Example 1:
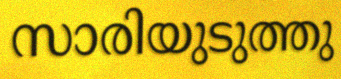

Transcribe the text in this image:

സാരിയുടുത്തു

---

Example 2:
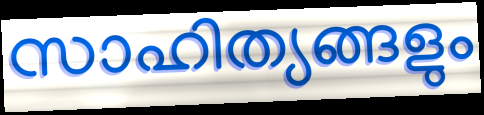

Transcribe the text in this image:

സാഹിത്യങ്ങളും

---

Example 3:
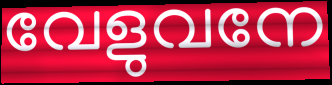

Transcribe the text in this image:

വേളുവനേ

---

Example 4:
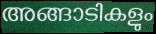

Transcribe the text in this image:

അങ്ങാടികളും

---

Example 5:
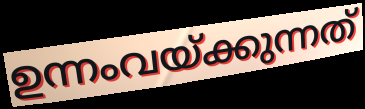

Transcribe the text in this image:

ഉന്നംവയ്ക്കുന്നത്